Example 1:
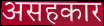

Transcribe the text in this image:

असहकार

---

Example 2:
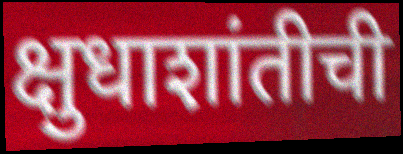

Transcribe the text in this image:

क्षुधाशांतीची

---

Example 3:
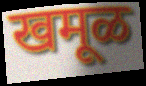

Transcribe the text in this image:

खमूळ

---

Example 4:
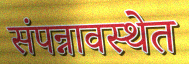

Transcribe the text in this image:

संपन्नावस्थेत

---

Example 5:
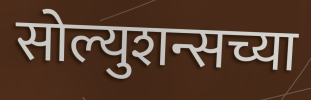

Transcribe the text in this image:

सोल्युशन्सच्या